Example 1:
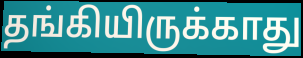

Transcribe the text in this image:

தங்கியிருக்காது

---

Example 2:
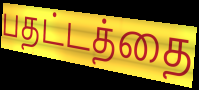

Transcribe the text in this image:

பதட்டத்தை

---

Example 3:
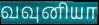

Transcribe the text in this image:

வவுனியா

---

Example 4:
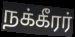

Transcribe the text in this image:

நக்கீரர்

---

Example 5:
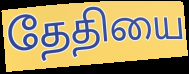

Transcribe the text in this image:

தேதியை